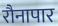
रौनापार